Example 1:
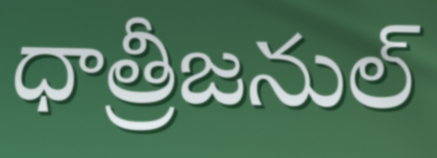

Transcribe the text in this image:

ధాత్రీజనుల్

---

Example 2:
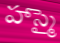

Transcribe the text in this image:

హాస్మై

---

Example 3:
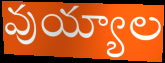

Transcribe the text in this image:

వుయ్యాల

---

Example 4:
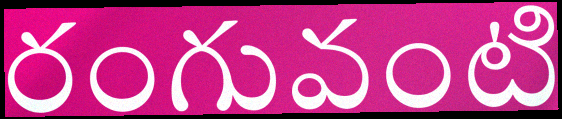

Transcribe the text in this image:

రంగువంటి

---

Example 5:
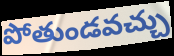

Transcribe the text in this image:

పోతుండవచ్చు